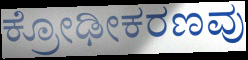
ಕ್ರೋಢೀಕರಣವು